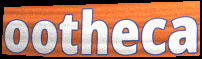
ootheca